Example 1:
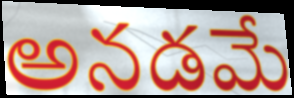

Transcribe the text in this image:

అనడమే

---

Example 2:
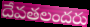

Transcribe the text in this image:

దేవతలందరు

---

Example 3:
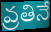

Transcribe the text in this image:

వ్రతినే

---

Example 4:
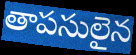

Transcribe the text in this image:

తాపసులైన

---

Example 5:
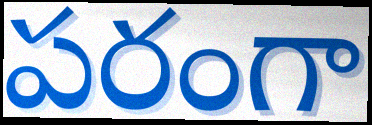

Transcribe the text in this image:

పరంగా